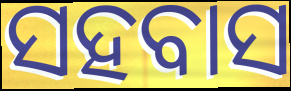
ସହବାସ